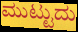
ಮುಟ್ಟುದು